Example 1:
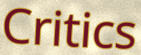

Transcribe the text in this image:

Critics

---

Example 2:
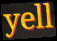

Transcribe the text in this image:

yell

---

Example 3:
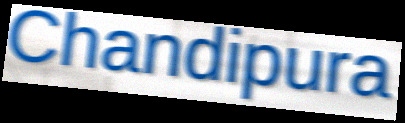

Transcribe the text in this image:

Chandipura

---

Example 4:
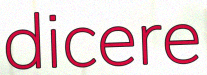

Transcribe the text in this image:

dicere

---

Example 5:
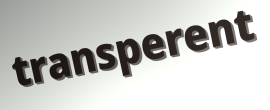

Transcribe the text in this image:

transperent